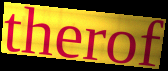
therof